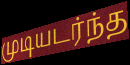
முடியடர்ந்த